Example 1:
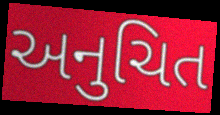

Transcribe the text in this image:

અનુચિત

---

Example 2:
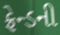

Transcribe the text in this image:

ફ્રેન્ડની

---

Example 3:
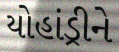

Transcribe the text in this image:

યોહાંડ્રીને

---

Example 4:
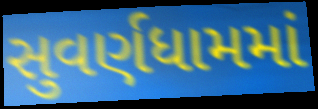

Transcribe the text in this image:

સુવર્ણધામમાં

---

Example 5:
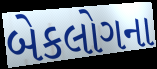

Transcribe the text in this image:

બેકલોગના